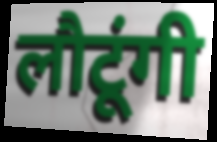
लौटूंगी